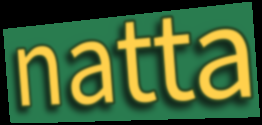
natta